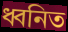
ধ্বনিত